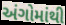
અંગોમાંથી